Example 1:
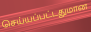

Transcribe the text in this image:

செய்யப்பட்டதுமான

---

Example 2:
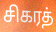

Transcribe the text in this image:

சிகரத்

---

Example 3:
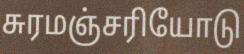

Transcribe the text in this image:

சுரமஞ்சரியோடு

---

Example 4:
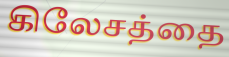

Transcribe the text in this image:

கிலேசத்தை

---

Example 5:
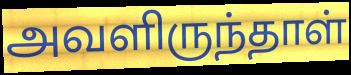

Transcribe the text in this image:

அவளிருந்தாள்